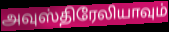
அவுஸ்திரேலியாவும்